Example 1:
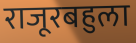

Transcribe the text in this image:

राजूरबहुला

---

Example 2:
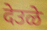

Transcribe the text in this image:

देउळे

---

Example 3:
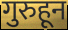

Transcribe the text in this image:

गुरुहून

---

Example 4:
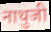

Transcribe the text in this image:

नाथुजी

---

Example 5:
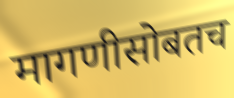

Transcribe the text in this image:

मागणीसोबतच